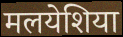
मलयेशिया